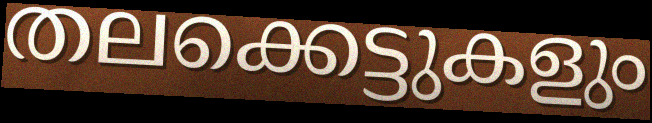
തലക്കെട്ടുകളും